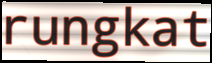
rungkat